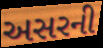
અસરની